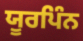
ਯੂਰਪਿੰਨ